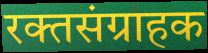
रक्तसंग्राहक